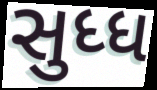
સુધ્ધ